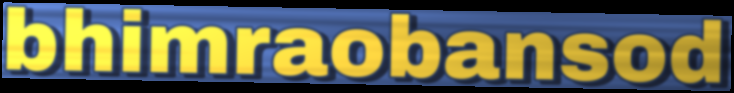
bhimraobansod